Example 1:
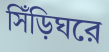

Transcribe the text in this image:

সিঁড়িঘরে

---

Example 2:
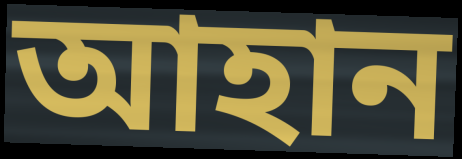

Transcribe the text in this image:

আহান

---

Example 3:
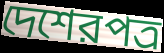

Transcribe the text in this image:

দেশেরপত্র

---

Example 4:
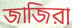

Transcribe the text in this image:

জাজিরা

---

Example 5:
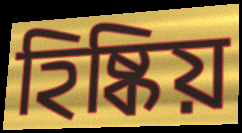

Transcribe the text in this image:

হিষ্কিয়